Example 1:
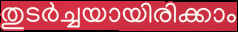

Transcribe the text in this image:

തുടർച്ചയായിരിക്കാം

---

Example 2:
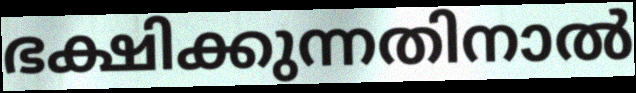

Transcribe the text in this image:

ഭക്ഷിക്കുന്നതിനാൽ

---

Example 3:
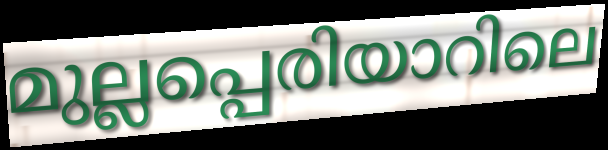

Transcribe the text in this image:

മുല്ലപ്പെരിയാറിലെ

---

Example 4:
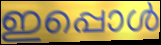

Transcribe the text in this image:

ഇപ്പൊൾ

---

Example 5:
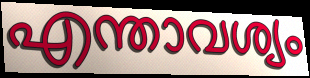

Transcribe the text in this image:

എന്താവശ്യം